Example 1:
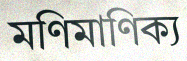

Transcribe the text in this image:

মণিমাণিক্য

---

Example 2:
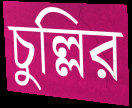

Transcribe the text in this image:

চুল্লির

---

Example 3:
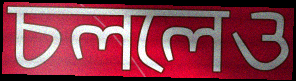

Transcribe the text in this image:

চললেও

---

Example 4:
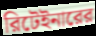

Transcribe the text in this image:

রিটেইনারের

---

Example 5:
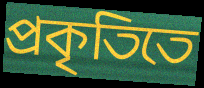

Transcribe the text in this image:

প্রকৃতিতে